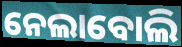
ନେଲାବୋଲି